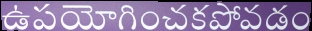
ఉపయోగించకపోవడం